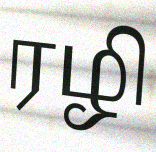
ரழி